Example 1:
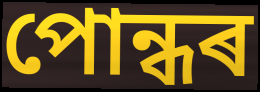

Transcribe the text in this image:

পোন্ধৰ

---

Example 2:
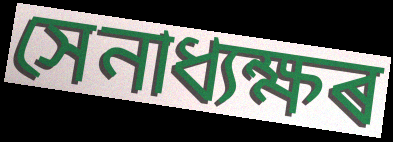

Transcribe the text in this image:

সেনাধ্যক্ষৰ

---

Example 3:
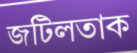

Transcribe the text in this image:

জটিলতাক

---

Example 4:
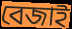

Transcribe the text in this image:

বেজাই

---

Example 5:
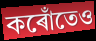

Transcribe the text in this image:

কৰোঁতেও